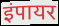
इंपायर